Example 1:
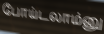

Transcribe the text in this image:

போய்டலாம்னு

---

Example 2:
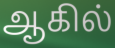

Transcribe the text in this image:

ஆகில்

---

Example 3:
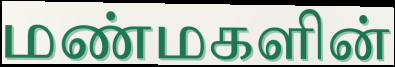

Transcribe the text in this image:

மண்மகளின்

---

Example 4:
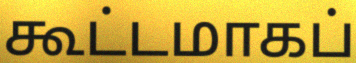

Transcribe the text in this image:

கூட்டமாகப்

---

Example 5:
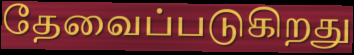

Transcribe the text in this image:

தேவைப்படுகிறது